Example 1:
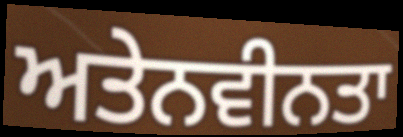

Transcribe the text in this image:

ਅਤੇਨਵੀਨਤਾ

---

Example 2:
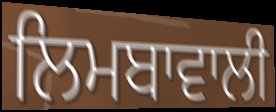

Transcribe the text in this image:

ਲਿਮਬਾਵਾਲੀ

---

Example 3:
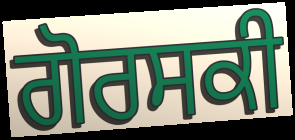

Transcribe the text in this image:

ਗੋਰਸਕੀ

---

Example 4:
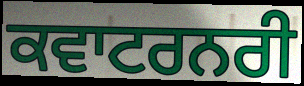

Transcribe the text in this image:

ਕਵਾਟਰਨਰੀ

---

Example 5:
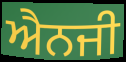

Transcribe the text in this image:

ਐਨਜੀ